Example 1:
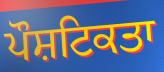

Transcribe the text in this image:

ਪੌਸ਼ਟਿਕਤਾ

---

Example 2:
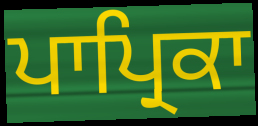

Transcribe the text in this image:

ਪਾਪ੍ਰਿਕਾ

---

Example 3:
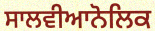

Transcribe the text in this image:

ਸਾਲਵੀਆਨੋਲਿਕ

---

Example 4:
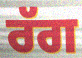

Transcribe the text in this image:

ਰੱਗ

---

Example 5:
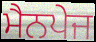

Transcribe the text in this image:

ਮੈਨਪੇਜ